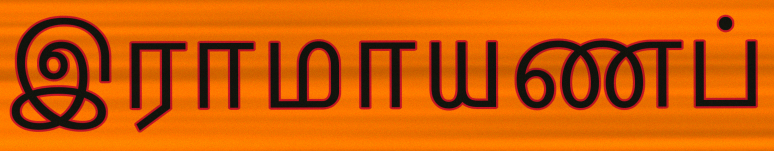
இராமாயணப்